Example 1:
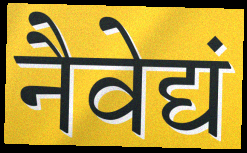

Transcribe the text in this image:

नैवेद्यं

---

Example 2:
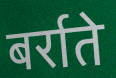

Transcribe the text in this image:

बर्राते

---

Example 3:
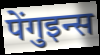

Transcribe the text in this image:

पेंगुइन्स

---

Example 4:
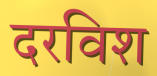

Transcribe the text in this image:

दरविश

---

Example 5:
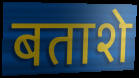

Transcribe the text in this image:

बताशे